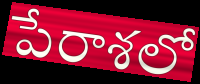
పేరాశలో